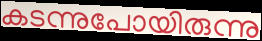
കടന്നുപോയിരുന്നു